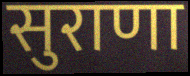
सुराणा